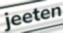
jeeten